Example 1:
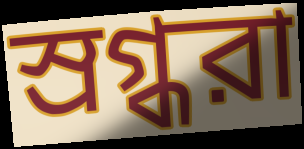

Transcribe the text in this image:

স্রগ্ধরা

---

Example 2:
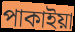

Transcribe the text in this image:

পাকাইয়া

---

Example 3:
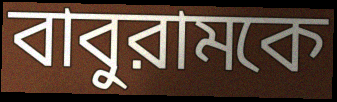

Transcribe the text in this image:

বাবুরামকে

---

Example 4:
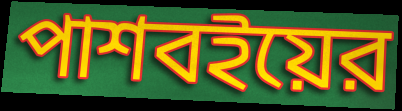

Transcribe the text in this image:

পাশবইয়ের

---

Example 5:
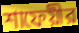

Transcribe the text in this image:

শাফেয়ীর